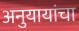
अनुयायांचा